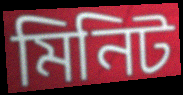
মিনিট